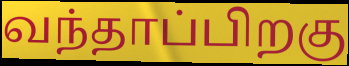
வந்தாப்பிறகு